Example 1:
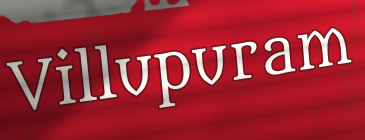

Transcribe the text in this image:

Villupuram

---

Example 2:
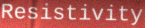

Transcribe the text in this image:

Resistivity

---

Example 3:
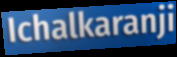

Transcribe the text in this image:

Ichalkaranji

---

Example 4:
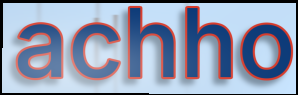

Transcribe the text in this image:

achho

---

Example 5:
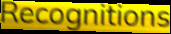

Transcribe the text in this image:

Recognitions